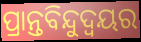
ପ୍ରାନ୍ତବିନ୍ଦୁଦ୍ଵୟର